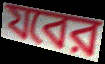
যবের